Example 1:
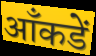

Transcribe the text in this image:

आँकडें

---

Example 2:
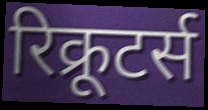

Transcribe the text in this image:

रिक्रूटर्स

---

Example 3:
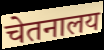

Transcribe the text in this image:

चेतनालय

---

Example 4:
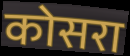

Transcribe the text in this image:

कोसरा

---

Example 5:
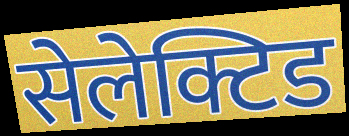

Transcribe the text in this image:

सेलेक्टिड